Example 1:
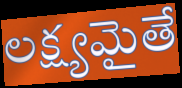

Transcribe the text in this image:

లక్ష్యమైతే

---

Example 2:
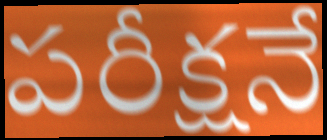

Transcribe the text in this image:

పరీక్షనే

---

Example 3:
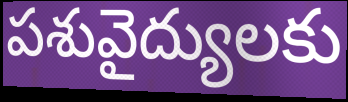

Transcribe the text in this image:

పశువైద్యులకు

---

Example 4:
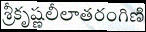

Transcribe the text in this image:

శ్రీకృష్ణలీలాతరంగిణి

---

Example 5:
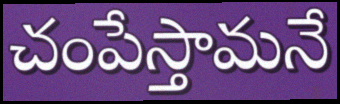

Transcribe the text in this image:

చంపేస్తామనే